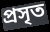
প্রসৃত